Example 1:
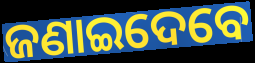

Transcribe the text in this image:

ଜଣାଇଦେବେ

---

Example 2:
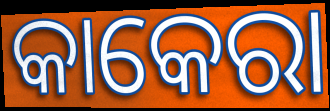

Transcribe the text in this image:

କାକେରା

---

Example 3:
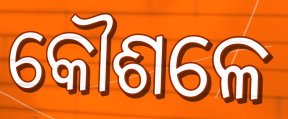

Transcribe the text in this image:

କୌଶଳେ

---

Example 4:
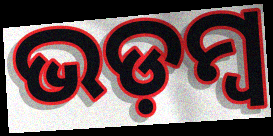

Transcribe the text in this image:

ଭଡ଼ମ୍ବ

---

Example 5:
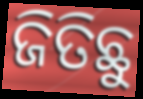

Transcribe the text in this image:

ଜିତିଛୁ